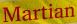
Martian